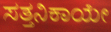
ಸತ್ತನಿಕಾಯೇ